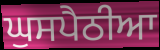
ਘੁਸਪੈਠੀਆ